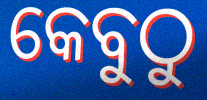
କେବୁଠୁ